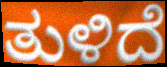
ತುಳಿದೆ